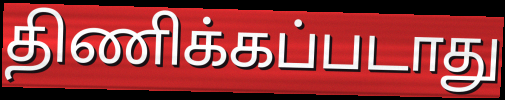
திணிக்கப்படாது